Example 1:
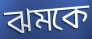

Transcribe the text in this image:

ঝমকে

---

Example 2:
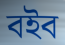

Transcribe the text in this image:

বইব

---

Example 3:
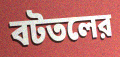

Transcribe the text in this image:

বটতলের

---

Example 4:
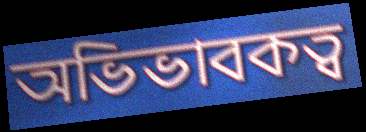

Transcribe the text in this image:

অভিভাবকত্ব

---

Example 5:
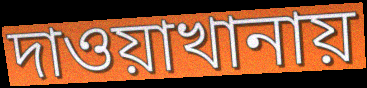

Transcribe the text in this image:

দাওয়াখানায়